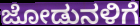
ಜೋಡುನಳಿಗೆ